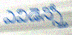
ఎవిడెన్స్తో